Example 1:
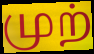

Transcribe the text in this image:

முற்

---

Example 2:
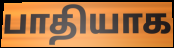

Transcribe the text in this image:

பாதியாக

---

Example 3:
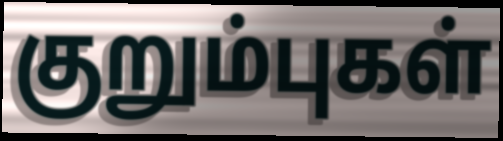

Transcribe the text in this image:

குறும்புகள்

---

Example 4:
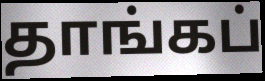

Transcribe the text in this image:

தாங்கப்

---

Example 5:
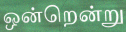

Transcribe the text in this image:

ஒன்றென்று